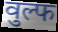
वुल्फ